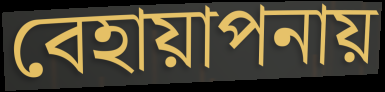
বেহায়াপনায়